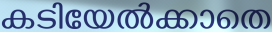
കടിയേൽക്കാതെ